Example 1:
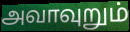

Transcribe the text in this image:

அவாவுறும்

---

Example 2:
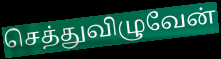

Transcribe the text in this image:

செத்துவிழுவேன்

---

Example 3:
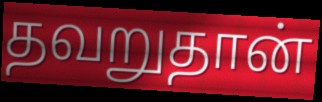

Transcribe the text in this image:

தவறுதான்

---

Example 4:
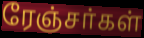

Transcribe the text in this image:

ரேஞ்சர்கள்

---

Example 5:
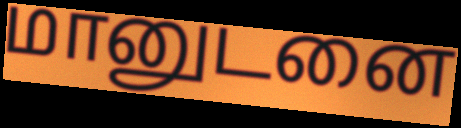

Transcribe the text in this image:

மானுடனை